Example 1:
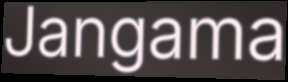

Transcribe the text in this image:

Jangama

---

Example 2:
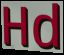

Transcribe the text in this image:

Hd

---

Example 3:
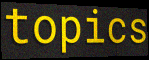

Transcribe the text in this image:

topics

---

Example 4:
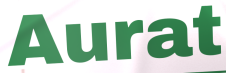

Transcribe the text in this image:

Aurat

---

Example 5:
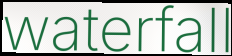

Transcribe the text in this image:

waterfall